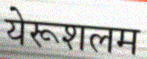
येरूशलम